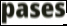
pases